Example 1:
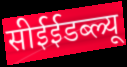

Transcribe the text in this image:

सीईईडब्ल्यू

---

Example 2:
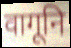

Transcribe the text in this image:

वागूनि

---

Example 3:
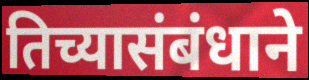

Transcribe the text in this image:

तिच्यासंबंधाने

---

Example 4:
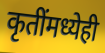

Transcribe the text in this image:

कृतींमध्येही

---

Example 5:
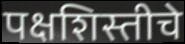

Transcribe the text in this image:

पक्षशिस्तीचे